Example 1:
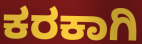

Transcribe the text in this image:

ಕರಕಾಗಿ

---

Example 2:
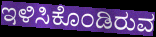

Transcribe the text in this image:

ಇಳಿಸಿಕೊಂಡಿರುವ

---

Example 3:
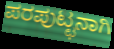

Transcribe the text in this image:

ಪರಪುಟ್ಟನಾಗಿ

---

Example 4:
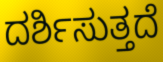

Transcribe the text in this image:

ದರ್ಶಿಸುತ್ತದೆ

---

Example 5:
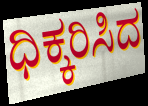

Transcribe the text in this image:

ಧಿಕ್ಕರಿಸಿದ